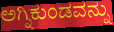
ಅಗ್ನಿಕುಂಡವನ್ನು